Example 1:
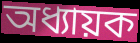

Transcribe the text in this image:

অধ্যায়ক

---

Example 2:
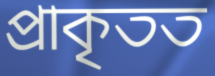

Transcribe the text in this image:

প্ৰাকৃতত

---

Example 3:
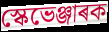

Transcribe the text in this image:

স্কেভেঞ্জাৰক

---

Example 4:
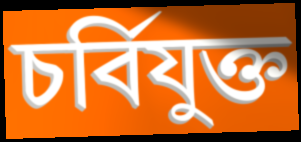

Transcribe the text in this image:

চৰ্বিযুক্ত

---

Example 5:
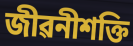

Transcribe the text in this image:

জীৱনীশক্তি